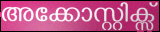
അക്കോസ്റ്റിക്സ്